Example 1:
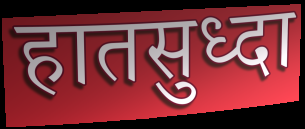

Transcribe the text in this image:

हातसुध्दा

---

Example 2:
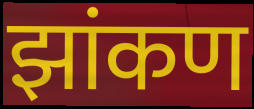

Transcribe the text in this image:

झांकण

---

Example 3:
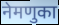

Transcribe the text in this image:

नेमणुका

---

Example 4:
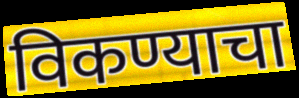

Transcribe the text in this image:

विकण्याचा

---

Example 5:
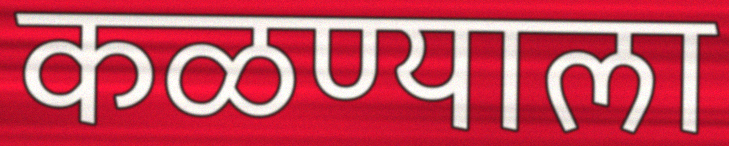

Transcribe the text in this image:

कळण्याला